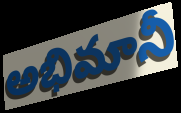
అభిమానీ